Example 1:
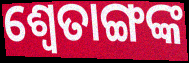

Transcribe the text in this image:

ଶ୍ୱେତାଙ୍ଗଙ୍କ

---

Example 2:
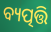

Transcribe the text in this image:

ବ୍ୟତ୍ପତ୍ତି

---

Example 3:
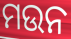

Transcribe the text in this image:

ମଉନ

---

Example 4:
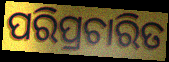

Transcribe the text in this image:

ପରିପ୍ରଚାରିତ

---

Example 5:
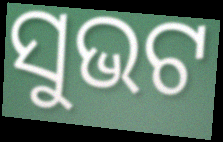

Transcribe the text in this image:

ସୁଭଟ